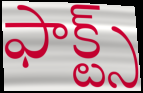
ఫాక్ట్స్